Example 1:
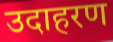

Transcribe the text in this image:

उदाहरण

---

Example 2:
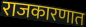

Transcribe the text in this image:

राजकारणात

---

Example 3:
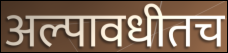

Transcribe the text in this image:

अल्पावधीतच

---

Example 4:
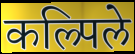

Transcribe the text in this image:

कल्पिले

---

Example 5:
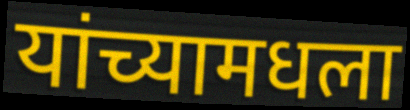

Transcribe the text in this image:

यांच्यामधला